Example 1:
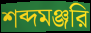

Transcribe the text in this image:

শব্দমঞ্জরি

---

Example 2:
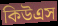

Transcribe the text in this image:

কিউএস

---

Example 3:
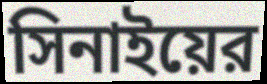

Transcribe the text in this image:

সিনাইয়ের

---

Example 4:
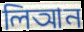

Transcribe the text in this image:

লিআন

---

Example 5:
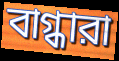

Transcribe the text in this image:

বাগ্ধারা